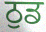
ਠੁਡ